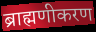
ब्राह्मणीकरण